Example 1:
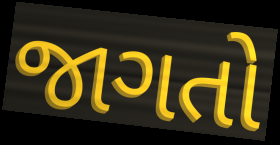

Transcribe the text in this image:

જાગતો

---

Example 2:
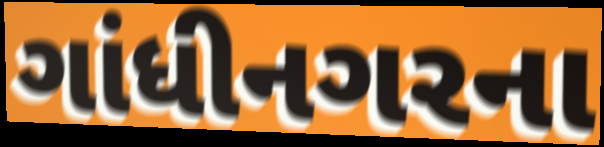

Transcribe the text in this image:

ગાંધીનગરના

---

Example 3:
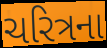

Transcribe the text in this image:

ચરિત્રના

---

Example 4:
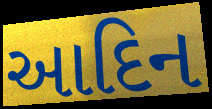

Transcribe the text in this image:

આદિન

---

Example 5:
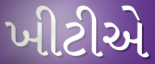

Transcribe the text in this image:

ખીટીએ